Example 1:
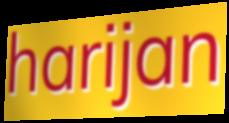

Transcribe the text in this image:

harijan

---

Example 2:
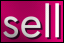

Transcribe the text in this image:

sell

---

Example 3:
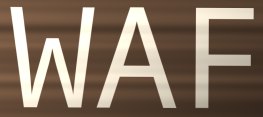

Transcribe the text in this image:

WAF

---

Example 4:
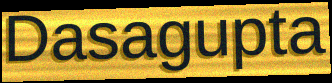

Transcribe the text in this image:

Dasagupta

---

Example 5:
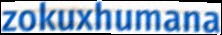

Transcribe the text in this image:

zokuxhumana